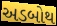
અડબોથ